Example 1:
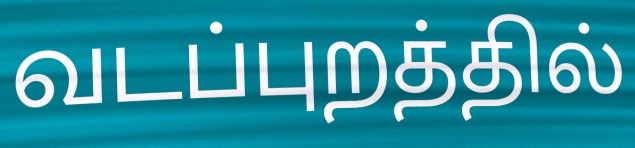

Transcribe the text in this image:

வடப்புறத்தில்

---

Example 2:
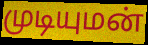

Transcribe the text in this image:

முடியுமன்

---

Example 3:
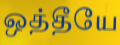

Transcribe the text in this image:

ஒத்தீயே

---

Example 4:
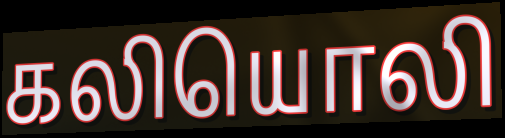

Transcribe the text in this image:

கலியொலி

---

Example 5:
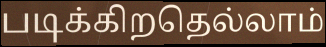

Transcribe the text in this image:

படிக்கிறதெல்லாம்